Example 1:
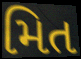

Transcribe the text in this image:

મિત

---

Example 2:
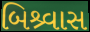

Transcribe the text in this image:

બિશ્ર્વાસ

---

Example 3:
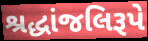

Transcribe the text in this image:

શ્રદ્ધાંજલિરૂપે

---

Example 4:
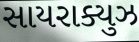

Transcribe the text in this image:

સાયરાક્યુઝ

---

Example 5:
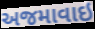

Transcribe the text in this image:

અજમાવાઇ